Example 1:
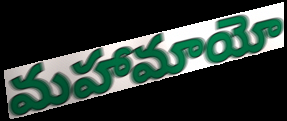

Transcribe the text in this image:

మహామాయో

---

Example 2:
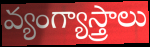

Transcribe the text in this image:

వ్యంగ్యాస్త్రాలు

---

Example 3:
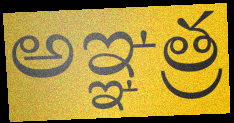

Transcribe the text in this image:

అఞ్ఞత్ర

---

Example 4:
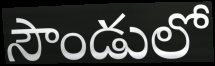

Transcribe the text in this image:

సౌండులో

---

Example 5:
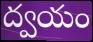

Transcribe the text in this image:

ద్వయం